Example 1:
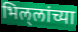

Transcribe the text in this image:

भिल्लांच्या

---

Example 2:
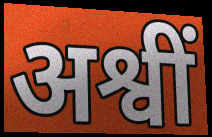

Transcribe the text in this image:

अश्वीं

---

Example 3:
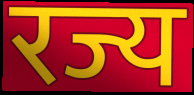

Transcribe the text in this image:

रज्य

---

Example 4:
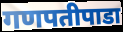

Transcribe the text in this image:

गणपतीपाडा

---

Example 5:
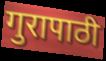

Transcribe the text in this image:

गुरापाठी